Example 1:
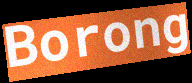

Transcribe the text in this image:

Borong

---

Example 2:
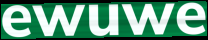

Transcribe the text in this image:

ewuwe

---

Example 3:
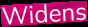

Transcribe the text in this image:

Widens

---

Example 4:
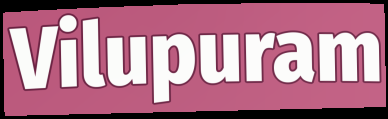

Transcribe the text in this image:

Vilupuram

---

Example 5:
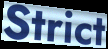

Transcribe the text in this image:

Strict